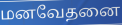
மனவேதனை